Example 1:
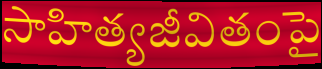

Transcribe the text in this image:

సాహిత్యజీవితంపై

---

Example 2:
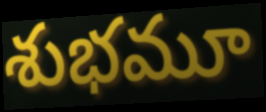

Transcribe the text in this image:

శుభమూ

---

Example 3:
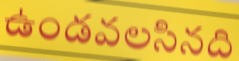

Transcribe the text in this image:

ఉండవలసినది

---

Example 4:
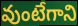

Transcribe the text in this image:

వుంటేగాని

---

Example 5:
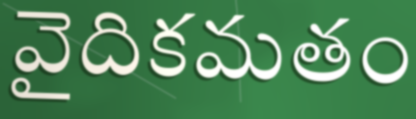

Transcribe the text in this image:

వైదికమతం